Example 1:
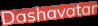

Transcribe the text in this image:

Dashavatar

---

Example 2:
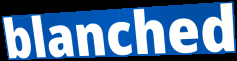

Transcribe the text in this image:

blanched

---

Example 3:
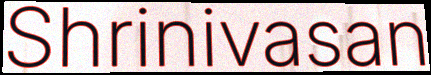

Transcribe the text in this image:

Shrinivasan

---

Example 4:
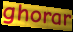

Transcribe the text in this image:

ghorar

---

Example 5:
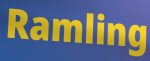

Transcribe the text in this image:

Ramling